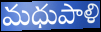
మధుపాళి